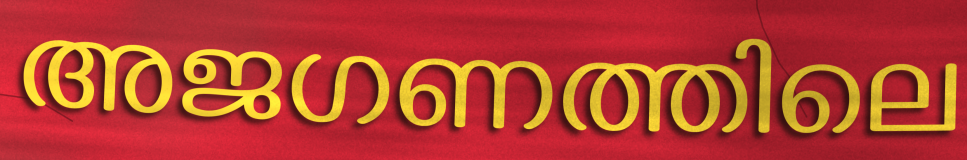
അജഗണത്തിലെ